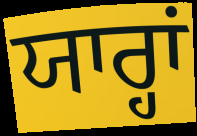
ਯਾਰ੍ਹਾਂ